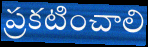
ప్రకటించాలి